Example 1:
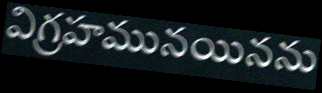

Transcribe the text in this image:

విగ్రహమునయినను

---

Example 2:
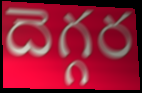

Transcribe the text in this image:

దెగ్గర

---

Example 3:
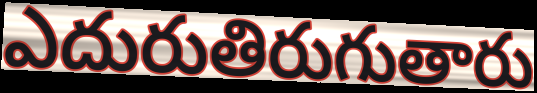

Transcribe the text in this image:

ఎదురుతిరుగుతారు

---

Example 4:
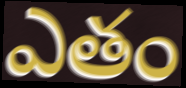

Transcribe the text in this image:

ఎతం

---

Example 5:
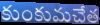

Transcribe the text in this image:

కుంకుమచేత